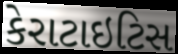
કેરાટાઇટિસ